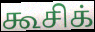
கூசிக்